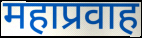
महाप्रवाह